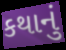
કથાનું